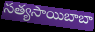
సత్యసాయిబాబా